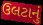
ઉલટાનું